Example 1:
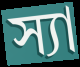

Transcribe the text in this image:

স্যা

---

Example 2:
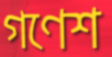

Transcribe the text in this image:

গণেশ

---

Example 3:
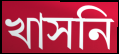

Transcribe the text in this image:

খাসনি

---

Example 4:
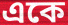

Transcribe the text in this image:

একে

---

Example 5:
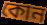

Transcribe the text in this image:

কোন